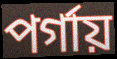
পর্গায়